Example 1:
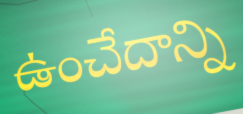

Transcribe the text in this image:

ఉంచేదాన్ని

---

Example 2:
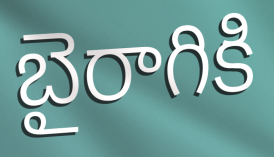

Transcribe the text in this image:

బైరాగికి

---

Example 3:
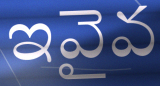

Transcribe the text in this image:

ఇవైవ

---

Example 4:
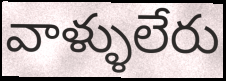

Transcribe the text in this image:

వాళ్ళులేరు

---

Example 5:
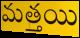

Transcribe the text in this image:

మత్తయి